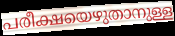
പരീക്ഷയെഴുതാനുള്ള